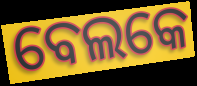
ବେଲକେ